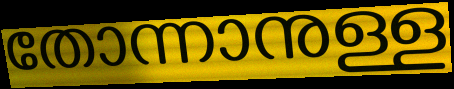
തോന്നാനുള്ള